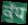
ਕੁੱਧ